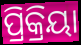
ପ୍ରିକ୍ରିୟା